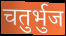
चतुर्भुज